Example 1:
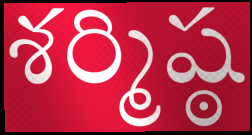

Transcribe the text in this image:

శర్మిష్ఠ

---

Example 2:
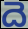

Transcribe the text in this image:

దె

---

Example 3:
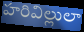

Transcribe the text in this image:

హరివిల్లులా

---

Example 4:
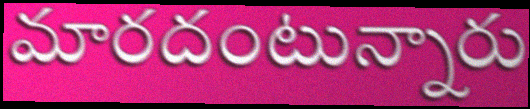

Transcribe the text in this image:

మారదంటున్నారు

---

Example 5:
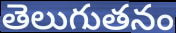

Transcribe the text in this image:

తెలుగుతనం